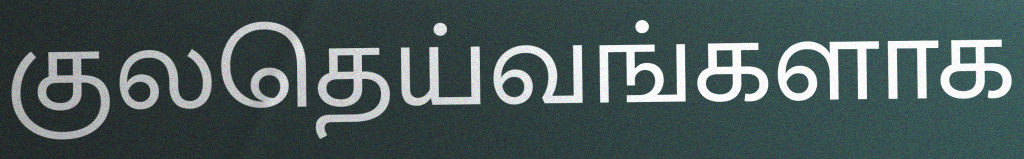
குலதெய்வங்களாக